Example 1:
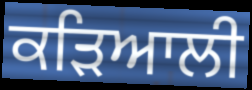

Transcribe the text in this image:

ਕੜਿਆਲੀ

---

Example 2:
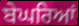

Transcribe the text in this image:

ਬੇਘਰਿਆਂ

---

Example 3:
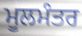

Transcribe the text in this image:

ਮੂਲਮੰਤਰ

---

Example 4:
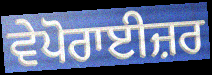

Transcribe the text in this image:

ਵੇਪੋਰਾਈਜ਼ਰ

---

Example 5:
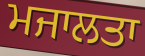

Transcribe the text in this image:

ਮਜਾਲਤਾ